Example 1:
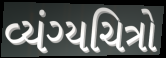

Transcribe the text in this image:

વ્યંગ્યચિત્રો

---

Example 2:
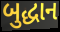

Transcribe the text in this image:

બુદ્ધાન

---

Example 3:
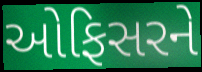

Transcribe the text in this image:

ઓફિસરને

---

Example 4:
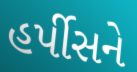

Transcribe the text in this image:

હર્પીસને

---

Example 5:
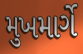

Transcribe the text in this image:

મુખમાર્ગે